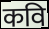
कवि